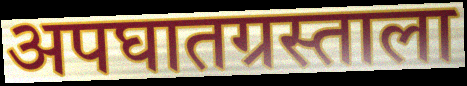
अपघातग्रस्ताला